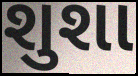
શુશા